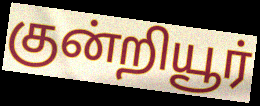
குன்றியூர்